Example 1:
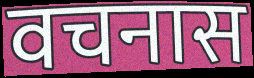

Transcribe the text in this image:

वचनास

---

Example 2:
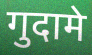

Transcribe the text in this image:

गुदामे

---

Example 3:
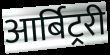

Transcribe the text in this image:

आर्बिट्ररी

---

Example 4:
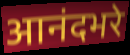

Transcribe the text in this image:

आनंदभरे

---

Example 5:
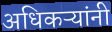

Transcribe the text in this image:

अधिकऱ्यांनी